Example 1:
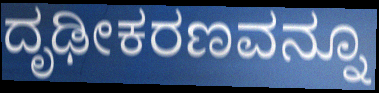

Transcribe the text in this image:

ದೃಢೀಕರಣವನ್ನೂ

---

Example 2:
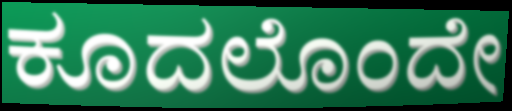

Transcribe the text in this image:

ಕೂದಲೊಂದೇ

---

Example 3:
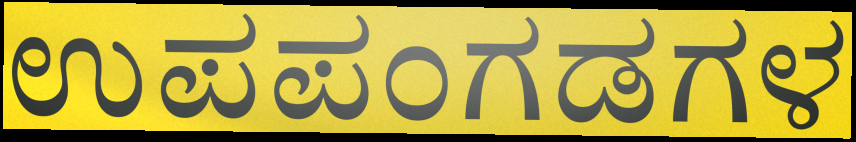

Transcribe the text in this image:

ಉಪಪಂಗಡಗಳ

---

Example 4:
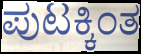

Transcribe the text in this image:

ಪುಟಕ್ಕಿಂತ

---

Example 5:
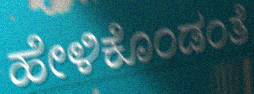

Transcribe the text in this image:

ಹೇಳಿಕೊಂಡಂತೆ